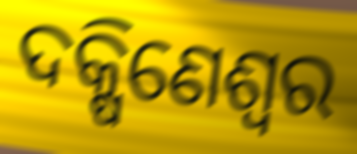
ଦକ୍ଷିଣେଶ୍ୱର